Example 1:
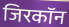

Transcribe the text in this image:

जिरकॉन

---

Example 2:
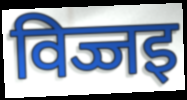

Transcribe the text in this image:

विज्जइ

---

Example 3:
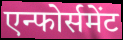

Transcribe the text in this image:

एन्फोर्समेंट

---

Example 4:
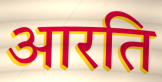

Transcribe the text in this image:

आरति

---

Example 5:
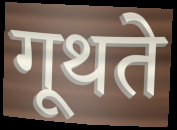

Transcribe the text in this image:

गूथते